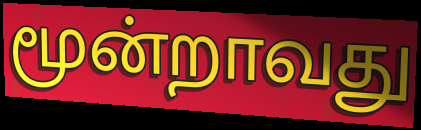
மூன்றாவது